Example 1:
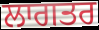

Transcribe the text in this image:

ਲਾਗਤਰ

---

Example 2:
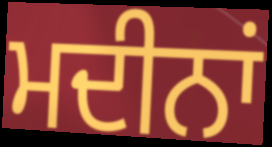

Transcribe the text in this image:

ਮਦੀਨਾਂ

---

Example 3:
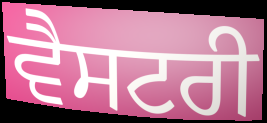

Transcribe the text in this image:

ਵੈਸਟਰੀ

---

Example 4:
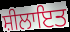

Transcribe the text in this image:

ਸ਼ੀਲਾਇਤ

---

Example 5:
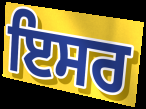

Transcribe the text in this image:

ਇਸਰ